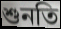
শুনতি